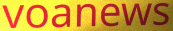
voanews